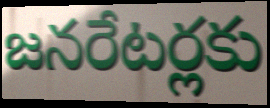
జనరేటర్లకు